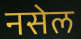
नसेल